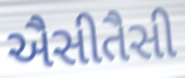
ઐસીતૈસી